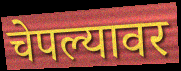
चेपल्यावर